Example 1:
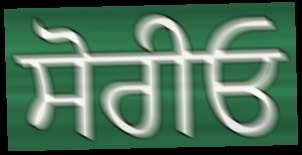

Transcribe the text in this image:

ਸੋਰੀਓ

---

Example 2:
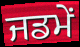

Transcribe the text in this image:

ਜਡਮੇਂ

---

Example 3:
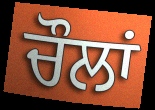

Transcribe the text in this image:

ਚੌਲਾਂ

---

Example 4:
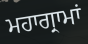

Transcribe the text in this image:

ਮਹਾਗ੍ਰਾਮਾਂ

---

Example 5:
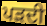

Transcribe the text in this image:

ਪੜਦੀ